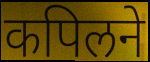
कपिलने